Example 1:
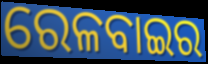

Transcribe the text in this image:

ରେଳବାଇର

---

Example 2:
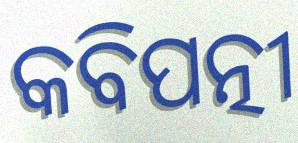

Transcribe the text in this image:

କବିପତ୍ନୀ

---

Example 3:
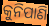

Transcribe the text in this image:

କୁନିପାଣି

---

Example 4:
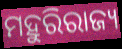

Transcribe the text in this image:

ମହୁରିରାଜ୍ୟ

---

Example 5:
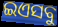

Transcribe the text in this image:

ଇଏସବୁ